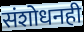
संशोधनही